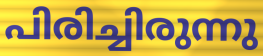
പിരിച്ചിരുന്നു